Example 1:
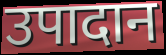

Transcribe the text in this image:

उपादान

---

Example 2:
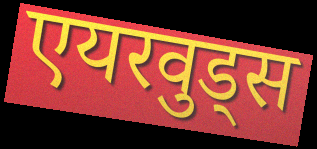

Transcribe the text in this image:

एयरवुड्स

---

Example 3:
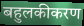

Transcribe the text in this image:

बहुलकीकरण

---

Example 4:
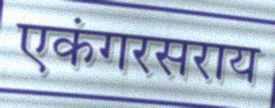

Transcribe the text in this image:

एकंगरसराय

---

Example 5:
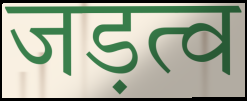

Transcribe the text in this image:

जड़त्व